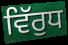
ਵਿੱਰੁਧ